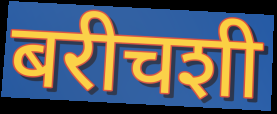
बरीचशी